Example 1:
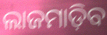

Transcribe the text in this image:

ଲାଜମାଡ଼ିବ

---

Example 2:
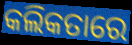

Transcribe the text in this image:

କଲିକତାରେ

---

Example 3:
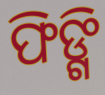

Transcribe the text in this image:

ଫିଙ୍ଗି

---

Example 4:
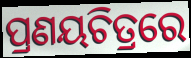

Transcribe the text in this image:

ପ୍ରଣୟଚିତ୍ରରେ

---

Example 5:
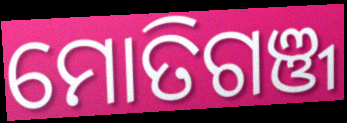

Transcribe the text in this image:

ମୋତିଗଞ୍ଜ